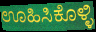
ಊಹಿಸಿಕೊಳ್ಳಿ